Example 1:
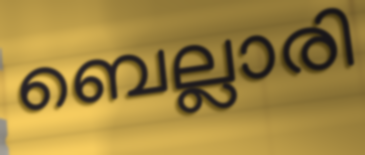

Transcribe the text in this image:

ബെല്ലാരി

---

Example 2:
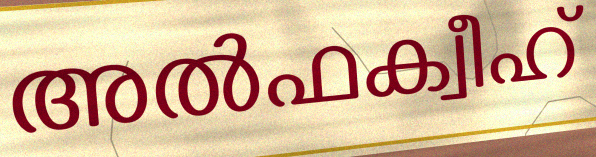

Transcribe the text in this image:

അൽഫക്വീഹ്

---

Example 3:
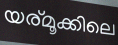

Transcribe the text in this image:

യര്മൂക്കിലെ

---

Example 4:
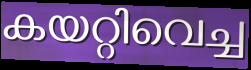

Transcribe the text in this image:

കയറ്റിവെച്ച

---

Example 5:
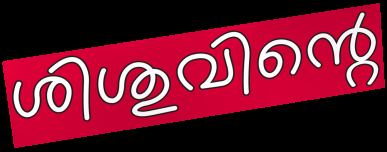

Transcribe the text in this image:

ശിശുവിന്റെ